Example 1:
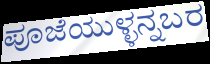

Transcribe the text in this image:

ಪೂಜೆಯುಳ್ಳನ್ನಬರ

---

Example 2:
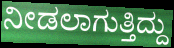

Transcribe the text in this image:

ನೀಡಲಾಗುತ್ತಿದ್ದು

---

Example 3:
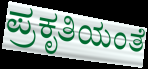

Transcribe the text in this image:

ಪ್ರಕೃತಿಯಂತೆ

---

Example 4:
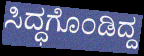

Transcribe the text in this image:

ಸಿದ್ಧಗೊಂಡಿದ್ದ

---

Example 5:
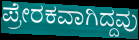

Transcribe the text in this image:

ಪ್ರೇರಕವಾಗಿದ್ದವು